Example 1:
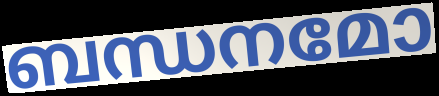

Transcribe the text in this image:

ബന്ധനമോ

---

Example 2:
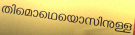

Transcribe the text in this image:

തിമൊഥെയൊസിനുള്ള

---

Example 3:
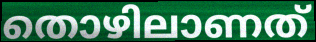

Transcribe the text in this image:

തൊഴിലാണത്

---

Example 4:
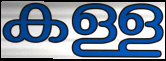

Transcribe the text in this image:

കള്ള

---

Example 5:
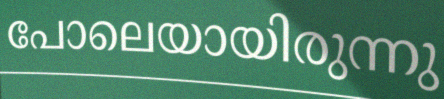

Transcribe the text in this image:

പോലെയായിരുന്നു